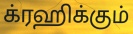
க்ரஹிக்கும்